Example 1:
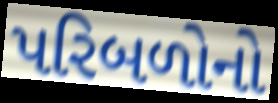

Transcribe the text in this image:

પરિબળોનો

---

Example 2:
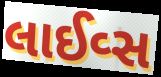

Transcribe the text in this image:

લાઈવ્સ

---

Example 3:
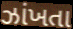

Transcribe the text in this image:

ઝાંખતા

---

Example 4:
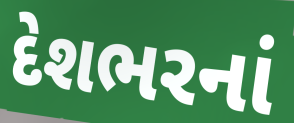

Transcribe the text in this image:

દેશભરનાં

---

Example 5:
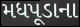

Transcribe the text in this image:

મધપૂડાના